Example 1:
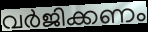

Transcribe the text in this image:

വർജിക്കണം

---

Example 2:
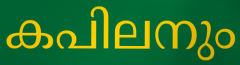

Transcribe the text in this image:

കപിലനും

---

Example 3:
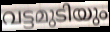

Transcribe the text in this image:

വട്ടമുടിയും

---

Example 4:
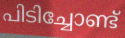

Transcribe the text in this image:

പിടിച്ചോണ്ട്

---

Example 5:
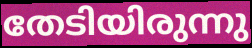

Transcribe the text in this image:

തേടിയിരുന്നു